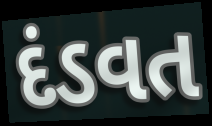
દંડવત